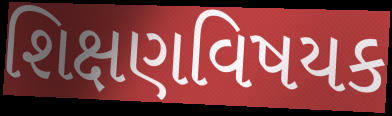
શિક્ષણવિષયક